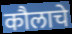
कौलाचे